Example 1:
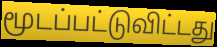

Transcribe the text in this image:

மூடப்பட்டுவிட்டது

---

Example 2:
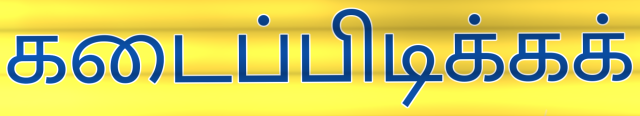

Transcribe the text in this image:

கடைப்பிடிக்கக்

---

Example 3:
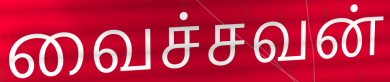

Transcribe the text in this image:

வைச்சவன்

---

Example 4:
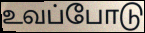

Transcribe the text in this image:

உவப்போடு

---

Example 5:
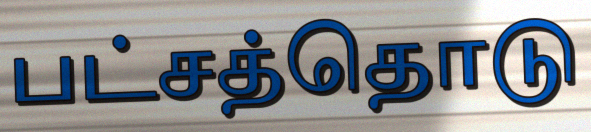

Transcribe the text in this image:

பட்சத்தொடு